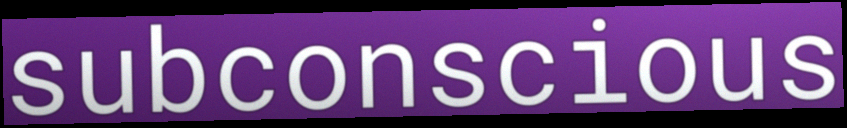
subconscious